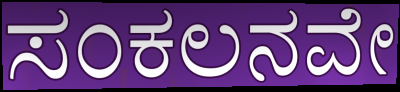
ಸಂಕಲನವೇ